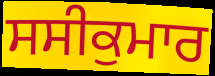
ਸਸੀਕੁਮਾਰ